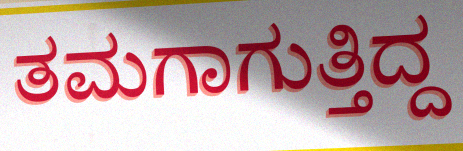
ತಮಗಾಗುತ್ತಿದ್ದ